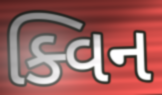
ક્વિન